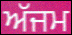
ਅੱਜਮ